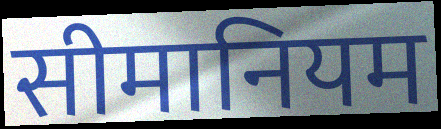
सीमानियम